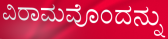
ವಿರಾಮವೊಂದನ್ನು